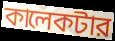
কালেকটার